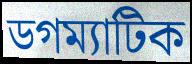
ডগম্যাটিক